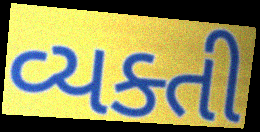
વ્યક્તી